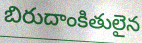
బిరుదాంకితులైన